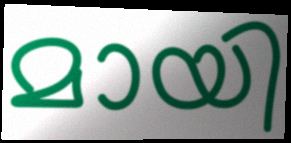
മായി